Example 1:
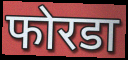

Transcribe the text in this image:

फोरडा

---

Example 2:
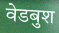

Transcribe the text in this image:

वेडबुश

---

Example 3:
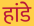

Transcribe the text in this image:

हांडे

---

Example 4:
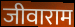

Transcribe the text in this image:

जीवाराम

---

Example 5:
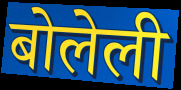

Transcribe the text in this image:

बोलेली